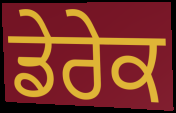
ਡੇਰੇਕ